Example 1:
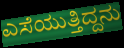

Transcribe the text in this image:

ಎಸೆಯುತ್ತಿದ್ದನು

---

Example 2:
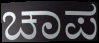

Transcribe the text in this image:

ಚಾಪ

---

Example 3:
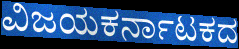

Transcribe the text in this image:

ವಿಜಯಕರ್ನಾಟಕದ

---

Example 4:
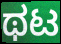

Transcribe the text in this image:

ಥಟ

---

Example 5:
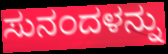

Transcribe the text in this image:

ಸುನಂದಳನ್ನು